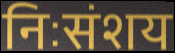
निःसंशय